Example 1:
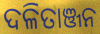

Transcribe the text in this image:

ଦଳିତାଞ୍ଜନ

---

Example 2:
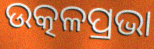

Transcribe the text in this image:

ଉତ୍କଳପ୍ରଭା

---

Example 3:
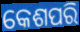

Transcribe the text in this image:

କେଶପରି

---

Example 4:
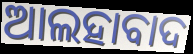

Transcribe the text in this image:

ଆଲହାବାଦ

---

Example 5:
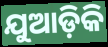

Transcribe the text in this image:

ଯୁଆଡ଼ିକି